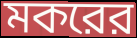
মকরের